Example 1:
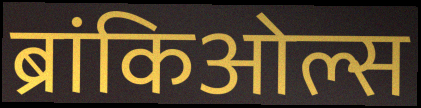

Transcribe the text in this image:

ब्रांकिओल्स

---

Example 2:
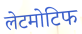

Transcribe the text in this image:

लेटमोटिफ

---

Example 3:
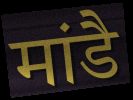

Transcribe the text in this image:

मांडै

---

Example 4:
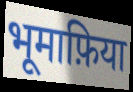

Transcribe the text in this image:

भूमाफ़िया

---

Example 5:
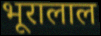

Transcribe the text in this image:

भूरालाल